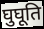
घुघूति